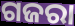
ଗଜରା